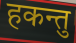
हकन्तु